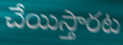
చేయిస్తారట